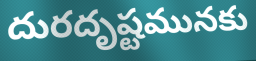
దురదృష్టమునకు